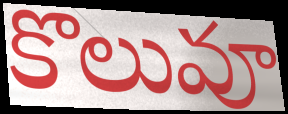
కొలువూ